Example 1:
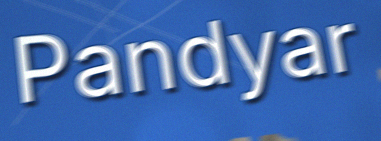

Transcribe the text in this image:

Pandyar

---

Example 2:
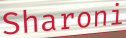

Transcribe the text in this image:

Sharoni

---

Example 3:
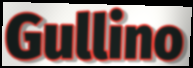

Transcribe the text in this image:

Gullino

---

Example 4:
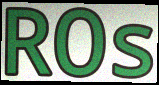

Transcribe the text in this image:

ROs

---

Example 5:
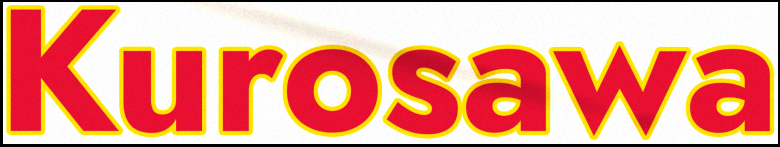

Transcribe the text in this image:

Kurosawa